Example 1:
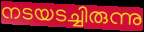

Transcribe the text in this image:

നടയടച്ചിരുന്നു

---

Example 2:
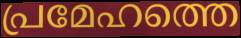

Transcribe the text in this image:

പ്രമേഹത്തെ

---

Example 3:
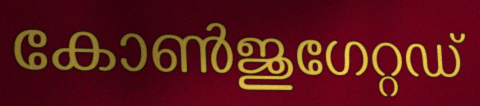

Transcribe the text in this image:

കോൺജുഗേറ്റഡ്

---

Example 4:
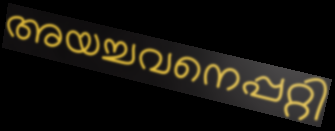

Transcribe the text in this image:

അയച്ചവനെപ്പറ്റി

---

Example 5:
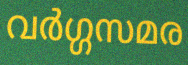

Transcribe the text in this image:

വർഗ്ഗസമര